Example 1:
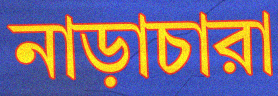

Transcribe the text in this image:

নাড়াচারা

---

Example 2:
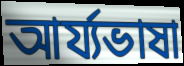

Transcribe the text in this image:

আর্য্যভাষা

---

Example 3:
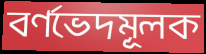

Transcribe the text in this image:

বর্ণভেদমূলক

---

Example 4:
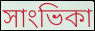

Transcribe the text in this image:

সাংভিকা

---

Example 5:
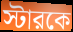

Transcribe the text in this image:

স্টারকে